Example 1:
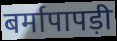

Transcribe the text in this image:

बर्मापापड़ी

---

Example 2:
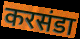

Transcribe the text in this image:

करसंडा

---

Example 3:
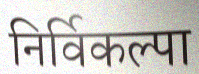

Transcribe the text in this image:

निर्विकल्पा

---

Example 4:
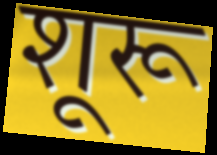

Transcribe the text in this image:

शूरू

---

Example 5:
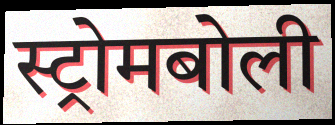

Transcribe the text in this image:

स्ट्रोमबोली